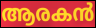
ആരകൻ